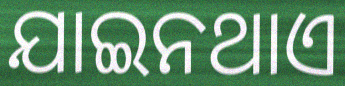
ଯାଇନଥାଏ